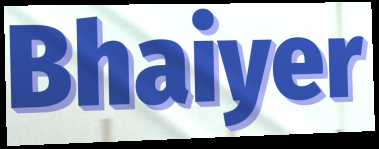
Bhaiyer